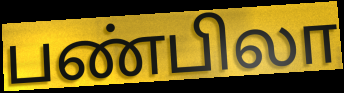
பண்பிலா